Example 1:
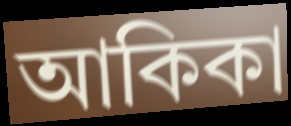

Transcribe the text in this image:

আকিকা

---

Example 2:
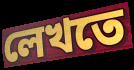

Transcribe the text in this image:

লেখতে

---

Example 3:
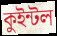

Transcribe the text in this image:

কুইন্টল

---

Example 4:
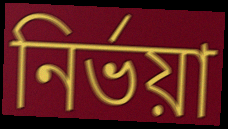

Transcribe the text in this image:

নির্ভয়া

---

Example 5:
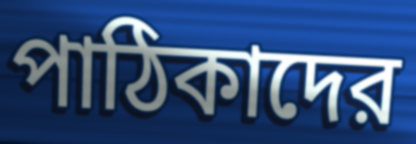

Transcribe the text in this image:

পাঠিকাদের